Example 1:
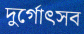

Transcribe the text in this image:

দুর্গোৎসব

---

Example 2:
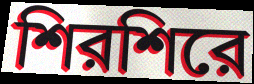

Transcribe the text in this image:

শিরশিরে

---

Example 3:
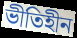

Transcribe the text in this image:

ভীতিহীন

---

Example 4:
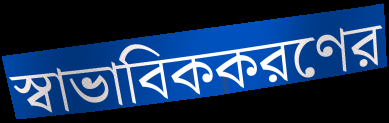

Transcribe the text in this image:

স্বাভাবিককরণের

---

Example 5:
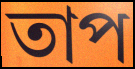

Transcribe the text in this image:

তাপ